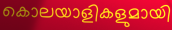
കൊലയാളികളുമായി